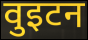
वुइटन